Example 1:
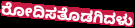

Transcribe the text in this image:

ರೋದಿಸತೊಡಗಿದಳು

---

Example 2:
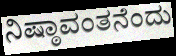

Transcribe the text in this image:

ನಿಷ್ಠಾವಂತನೆಂದು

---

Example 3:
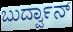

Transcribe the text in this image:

ಬುರ್ದ್ವಾನ್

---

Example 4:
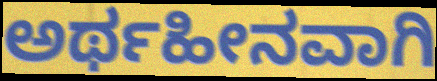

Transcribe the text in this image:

ಅರ್ಥಹೀನವಾಗಿ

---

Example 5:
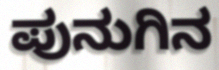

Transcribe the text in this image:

ಪುನುಗಿನ